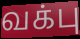
வக்பு